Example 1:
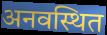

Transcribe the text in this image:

अनवस्थित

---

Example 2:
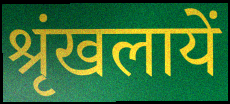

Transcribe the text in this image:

श्रृंखलायें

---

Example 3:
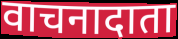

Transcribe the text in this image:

वाचनादाता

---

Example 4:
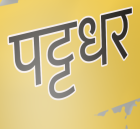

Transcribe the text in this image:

पट्टधर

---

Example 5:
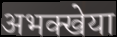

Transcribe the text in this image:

अभक्खेया